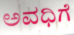
ಅವಧಿಗೆ